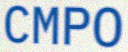
CMPO